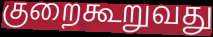
குறைகூறுவது